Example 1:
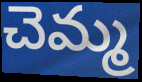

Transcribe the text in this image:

చెమ్మ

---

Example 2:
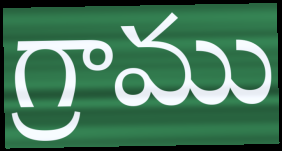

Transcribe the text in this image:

గ్రాము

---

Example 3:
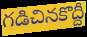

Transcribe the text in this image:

గడిచినకొద్దీ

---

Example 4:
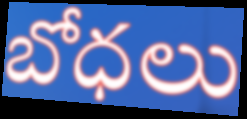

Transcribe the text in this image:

బోధలు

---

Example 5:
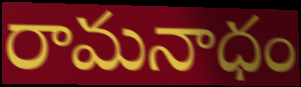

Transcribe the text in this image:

రామనాధం